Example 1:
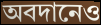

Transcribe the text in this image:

অবদানেও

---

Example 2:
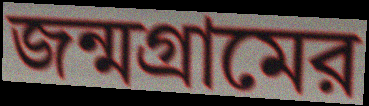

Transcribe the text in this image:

জন্মগ্রামের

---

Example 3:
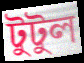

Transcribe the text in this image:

টুটুল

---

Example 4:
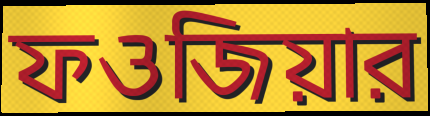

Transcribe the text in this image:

ফওজিয়ার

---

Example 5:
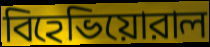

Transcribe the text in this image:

বিহেভিয়োরাল